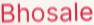
Bhosale